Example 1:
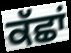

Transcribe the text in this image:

ਕੱਛਾਂ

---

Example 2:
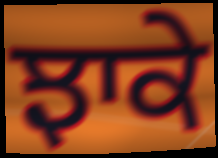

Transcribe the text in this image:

ਝਾਕੇ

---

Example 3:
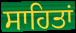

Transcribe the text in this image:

ਸਾਹਿਤਾਂ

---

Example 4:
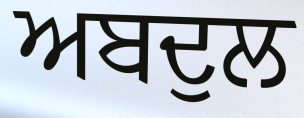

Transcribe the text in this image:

ਅਬਦੁਲ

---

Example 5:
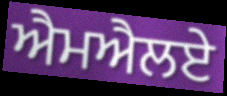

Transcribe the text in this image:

ਐਮਐਲਏ